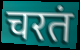
चरतं